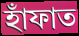
হাঁফাত